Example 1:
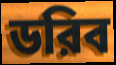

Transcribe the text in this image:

ডরিব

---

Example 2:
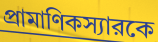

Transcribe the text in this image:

প্রামাণিকস্যারকে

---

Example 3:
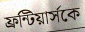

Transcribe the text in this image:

ফ্রন্টিয়ার্সকে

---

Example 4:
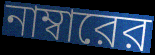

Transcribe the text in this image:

নাম্বারের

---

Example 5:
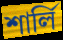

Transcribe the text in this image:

শার্লি